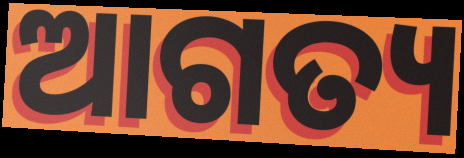
ଆଗତ୍ୟ